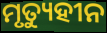
ମୃତ୍ୟୁହୀନ